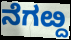
ನೆಗೞ್ದ